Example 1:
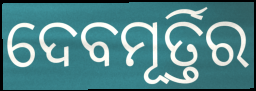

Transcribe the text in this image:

ଦେବମୂର୍ତ୍ତିର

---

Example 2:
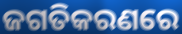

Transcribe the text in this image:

ଜଗତିକରଣରେ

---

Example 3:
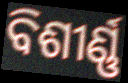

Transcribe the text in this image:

ବିଶୀର୍ଣ୍ଣ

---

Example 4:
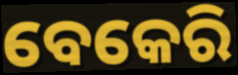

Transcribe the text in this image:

ବେକେରି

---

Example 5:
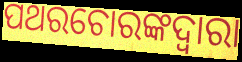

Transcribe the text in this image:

ପଥରଚୋରଙ୍କଦ୍ୱାରା